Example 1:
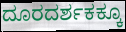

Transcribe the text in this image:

ದೂರದರ್ಶಕಕ್ಕೂ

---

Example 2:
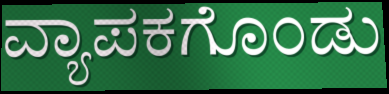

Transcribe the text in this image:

ವ್ಯಾಪಕಗೊಂಡು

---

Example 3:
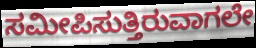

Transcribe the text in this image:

ಸಮೀಪಿಸುತ್ತಿರುವಾಗಲೇ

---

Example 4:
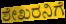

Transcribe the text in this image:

ಶೇಖರನಿಗೆ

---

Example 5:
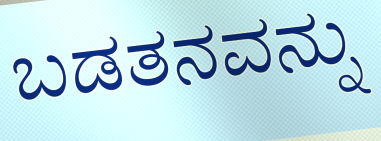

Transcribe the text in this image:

ಬಡತನವನ್ನು